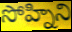
సోహ్నిని